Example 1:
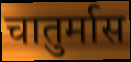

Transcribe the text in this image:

चातुर्मास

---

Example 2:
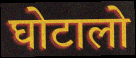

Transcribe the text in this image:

घोटालो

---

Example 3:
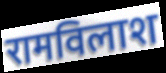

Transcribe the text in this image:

रामविलाश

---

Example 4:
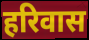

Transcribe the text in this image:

हरिवास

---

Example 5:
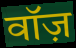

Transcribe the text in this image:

वॉज़